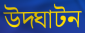
উদ্ঘাটন